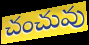
చంచువు